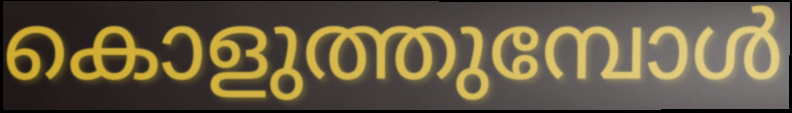
കൊളുത്തുമ്പോൾ